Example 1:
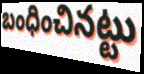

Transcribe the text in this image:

బంధించినట్టు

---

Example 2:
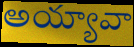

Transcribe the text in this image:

అయ్యావా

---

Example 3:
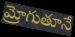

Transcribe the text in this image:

మ్రోగుతూనే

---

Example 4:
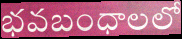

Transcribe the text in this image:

భవబంధాలలో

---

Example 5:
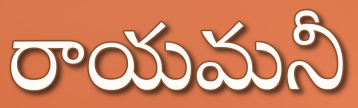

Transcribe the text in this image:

రాయమనీ